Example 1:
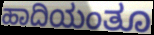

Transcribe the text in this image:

ಹಾದಿಯಂತೂ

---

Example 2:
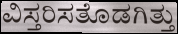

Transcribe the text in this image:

ವಿಸ್ತರಿಸತೊಡಗಿತ್ತು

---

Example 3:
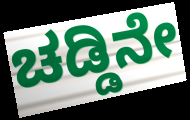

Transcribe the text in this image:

ಚಡ್ಡಿನೇ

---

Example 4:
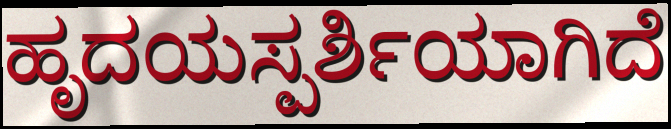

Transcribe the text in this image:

ಹೃದಯಸ್ಪರ್ಶಿಯಾಗಿದೆ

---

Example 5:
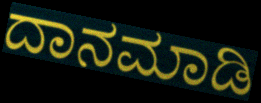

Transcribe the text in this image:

ದಾನಮಾಡಿ